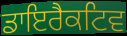
ਡਾਇਰੈਕਟਿਵ